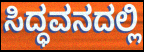
ಸಿದ್ಧವನದಲ್ಲಿ